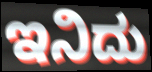
ಇನಿದು